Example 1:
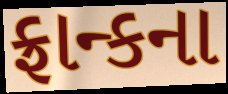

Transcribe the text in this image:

ફ્રાન્કના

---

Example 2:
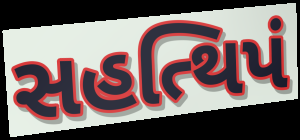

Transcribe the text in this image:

સહત્થિપં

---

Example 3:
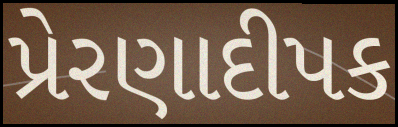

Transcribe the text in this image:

પ્રેરણાદીપક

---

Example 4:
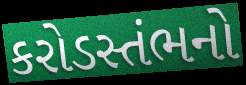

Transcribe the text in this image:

કરોડસ્તંભનો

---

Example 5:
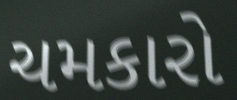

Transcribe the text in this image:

ચમકારો